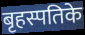
बृहस्पतिके